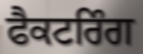
ਫੈਕਟਰਿੰਗ